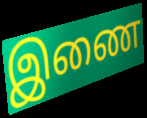
இணை